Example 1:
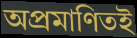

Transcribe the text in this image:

অপ্রমাণিতই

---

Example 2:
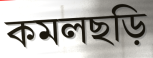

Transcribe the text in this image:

কমলছড়ি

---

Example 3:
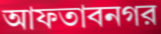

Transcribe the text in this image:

আফতাবনগর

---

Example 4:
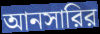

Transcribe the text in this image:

আনসারির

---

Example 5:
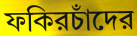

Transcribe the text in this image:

ফকিরচাঁদের